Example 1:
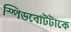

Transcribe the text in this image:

স্পিডবোটটাকে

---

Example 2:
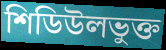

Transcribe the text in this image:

শিডিউলভুক্ত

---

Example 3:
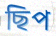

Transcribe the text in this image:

ছিপ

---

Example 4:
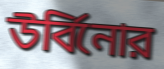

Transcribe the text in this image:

উর্বিনোর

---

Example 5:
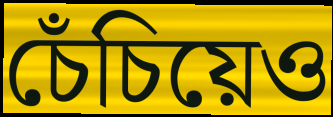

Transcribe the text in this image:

চেঁচিয়েও